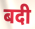
बदी